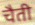
चैती